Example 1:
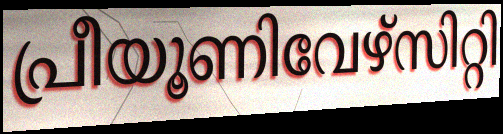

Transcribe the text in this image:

പ്രീയൂണിവേഴ്സിറ്റി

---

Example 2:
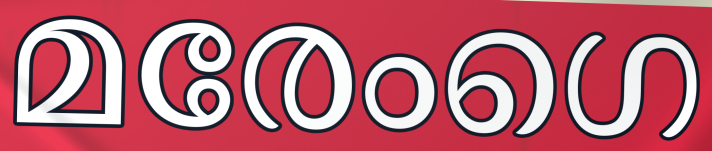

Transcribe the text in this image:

മരേംഗെ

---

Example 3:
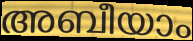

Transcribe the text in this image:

അബീയാം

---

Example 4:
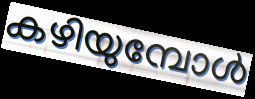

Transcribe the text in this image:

കഴിയുമ്പോൾ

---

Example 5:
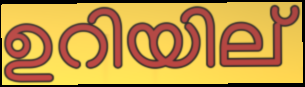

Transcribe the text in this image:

ഉറിയില്